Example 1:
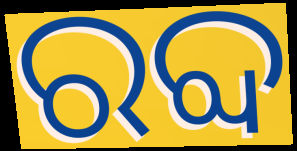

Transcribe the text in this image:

ରବ୍ଦ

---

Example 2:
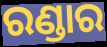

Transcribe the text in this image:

ରଣ୍ଡାର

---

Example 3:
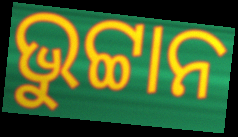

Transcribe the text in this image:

ଭୁଟ୍ଟାନ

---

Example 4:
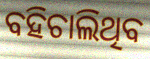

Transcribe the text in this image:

ବହିଚାଲିଥିବ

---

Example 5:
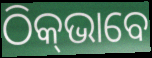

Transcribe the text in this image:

ଠିକ୍‌ଭାବେ